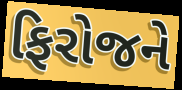
ફિરોજને